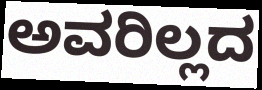
ಅವರಿಲ್ಲದ